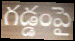
గడ్డంపై